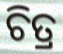
ଚିତ୍ର